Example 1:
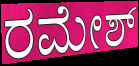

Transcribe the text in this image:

ರಮೇಶ್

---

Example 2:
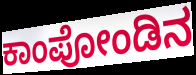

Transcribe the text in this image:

ಕಾಂಪೋಂಡಿನ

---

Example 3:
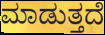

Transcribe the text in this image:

ಮಾಡುತ್ತದೆ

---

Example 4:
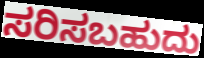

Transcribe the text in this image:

ಸರಿಸಬಹುದು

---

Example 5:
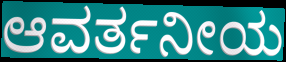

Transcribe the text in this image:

ಆವರ್ತನೀಯ